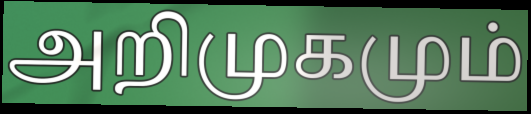
அறிமுகமும்